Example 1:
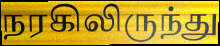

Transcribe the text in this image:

நரகிலிருந்து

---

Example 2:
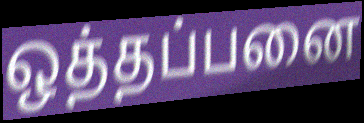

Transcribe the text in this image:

ஒத்தப்பனை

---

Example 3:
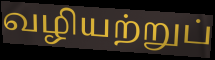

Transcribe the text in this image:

வழியற்றுப்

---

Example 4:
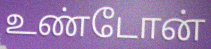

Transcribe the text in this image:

உண்டோன்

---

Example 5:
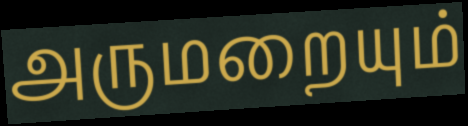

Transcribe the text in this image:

அருமறையும்